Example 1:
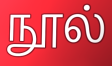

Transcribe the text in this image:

நூல்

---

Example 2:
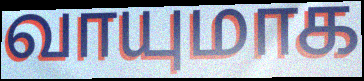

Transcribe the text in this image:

வாயுமாக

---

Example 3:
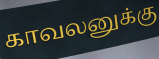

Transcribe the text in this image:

காவலனுக்கு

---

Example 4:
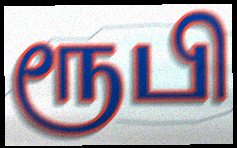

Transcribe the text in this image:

ரூபி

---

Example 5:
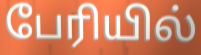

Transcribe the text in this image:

பேரியில்